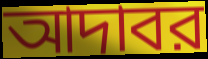
আদাবর